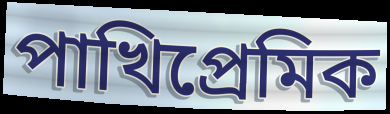
পাখিপ্রেমিক